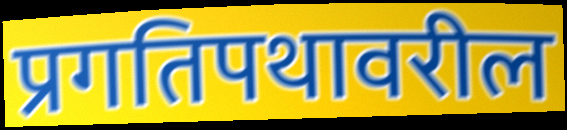
प्रगतिपथावरील